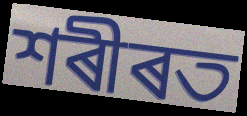
শৰীৰত